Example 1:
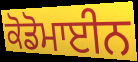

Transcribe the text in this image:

ਕੋਡੋਮਾਈਨ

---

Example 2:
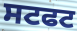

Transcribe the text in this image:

ਸਟਫਟ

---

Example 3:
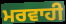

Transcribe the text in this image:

ਮਰਵਾਹੀ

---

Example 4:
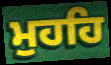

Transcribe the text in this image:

ਮੁਹਹਿ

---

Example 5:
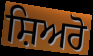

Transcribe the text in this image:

ਸ਼ਿਅਰੋ